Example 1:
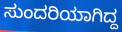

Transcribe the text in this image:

ಸುಂದರಿಯಾಗಿದ್ದ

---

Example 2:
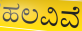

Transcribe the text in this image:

ಹಲವಿವೆ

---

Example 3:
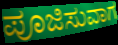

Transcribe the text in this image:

ಪೂಜಿಸುವಾಗ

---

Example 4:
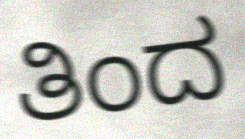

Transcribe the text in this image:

ತಿಂದ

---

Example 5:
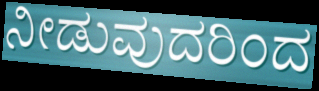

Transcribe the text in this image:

ನೀಡುವುದರಿಂದ